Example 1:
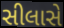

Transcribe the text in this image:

સીલાસે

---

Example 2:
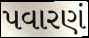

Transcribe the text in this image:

પવારણં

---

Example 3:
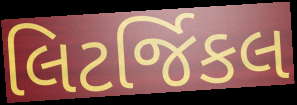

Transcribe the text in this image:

લિટર્જિકલ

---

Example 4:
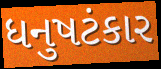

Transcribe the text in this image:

ધનુષટંકાર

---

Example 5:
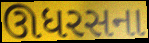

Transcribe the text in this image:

ઊધરસના